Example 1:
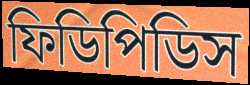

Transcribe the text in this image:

ফিডিপিডিস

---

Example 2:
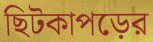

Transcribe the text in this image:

ছিটকাপড়ের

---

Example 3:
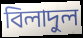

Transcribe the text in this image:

বিলাদুল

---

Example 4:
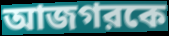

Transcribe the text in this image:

আজগরকে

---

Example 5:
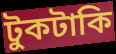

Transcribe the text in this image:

টুকটাকি